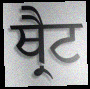
ਥ੍ਰੈਟ